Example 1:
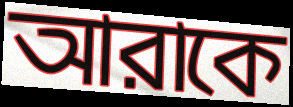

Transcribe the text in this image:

আরাকে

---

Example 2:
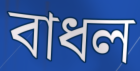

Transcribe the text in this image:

বাধল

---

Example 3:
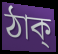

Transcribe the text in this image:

ঠাক্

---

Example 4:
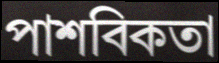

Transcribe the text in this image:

পাশবিকতা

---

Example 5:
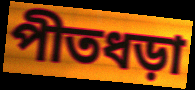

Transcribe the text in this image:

পীতধড়া